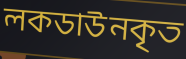
লকডাউনকৃত